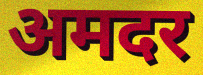
अमदर